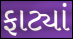
ફાટ્યાં